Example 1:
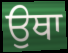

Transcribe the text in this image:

ਉਥਾ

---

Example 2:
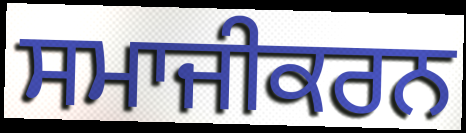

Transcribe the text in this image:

ਸਮਾਜੀਕਰਨ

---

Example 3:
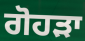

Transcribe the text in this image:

ਗੋਹੜਾ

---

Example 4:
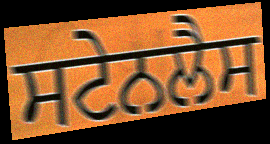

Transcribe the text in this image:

ਸਟੇਨਲੈਸ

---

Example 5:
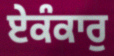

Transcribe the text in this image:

ਏਕੰਕਾਰੁ